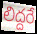
లిద్దరే